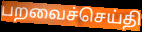
பறவைச்செய்தி